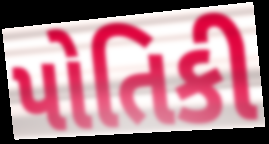
પોતિકી